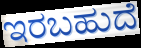
ಇರಬಹುದೆ